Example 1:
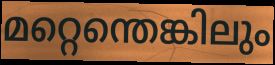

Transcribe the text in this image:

മറ്റെന്തെങ്കിലും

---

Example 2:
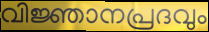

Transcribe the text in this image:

വിജ്ഞാനപ്രദവും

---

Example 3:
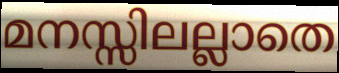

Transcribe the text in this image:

മനസ്സിലല്ലാതെ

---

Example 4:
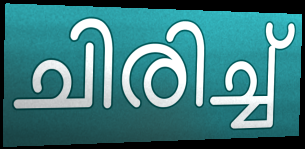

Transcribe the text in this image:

ചിരിച്ച്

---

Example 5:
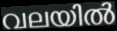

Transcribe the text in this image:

വലയിൽ